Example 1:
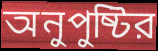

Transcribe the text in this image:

অনুপুষ্টির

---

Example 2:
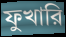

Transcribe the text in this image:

ফুখারি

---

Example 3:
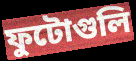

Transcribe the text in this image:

ফুটোগুলি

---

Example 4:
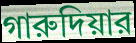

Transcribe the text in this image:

গারুদিয়ার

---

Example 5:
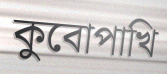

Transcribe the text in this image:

কুবোপাখি